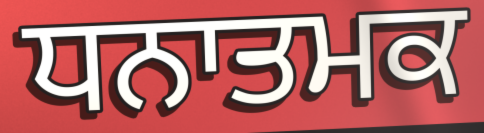
ਧਨਾਤਮਕ